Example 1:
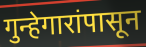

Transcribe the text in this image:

गुन्हेगारांपासून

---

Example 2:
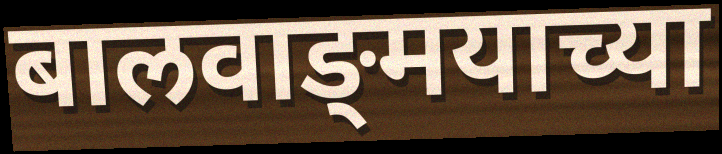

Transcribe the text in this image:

बालवाङ्‌मयाच्या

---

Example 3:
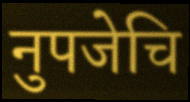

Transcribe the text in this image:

नुपजेचि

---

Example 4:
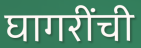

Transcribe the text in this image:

घागरींची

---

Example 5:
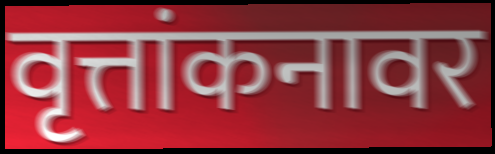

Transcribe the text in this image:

वृत्तांकनावर